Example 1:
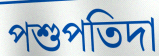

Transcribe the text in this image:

পশুপতিদা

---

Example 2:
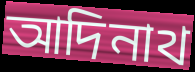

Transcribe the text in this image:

আদিনাথ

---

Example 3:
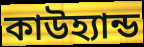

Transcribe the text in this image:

কাউহ্যান্ড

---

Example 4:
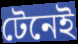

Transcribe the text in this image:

টেনেই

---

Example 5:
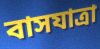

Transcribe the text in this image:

বাসযাত্রা